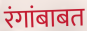
रंगांबाबत